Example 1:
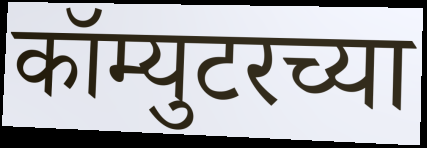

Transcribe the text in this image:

कॉम्युटरच्या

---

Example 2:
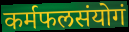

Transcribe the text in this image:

कर्मफलसंयोगं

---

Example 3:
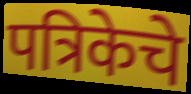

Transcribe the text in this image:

पत्रिकेचे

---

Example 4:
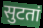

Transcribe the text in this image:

सुटतां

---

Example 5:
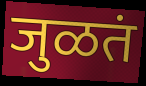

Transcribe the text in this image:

जुळतं